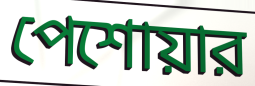
পেশোয়ার